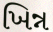
ખિન્ન